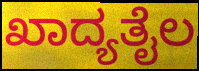
ಖಾದ್ಯತೈಲ